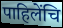
पाहिलेंचि